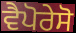
ਵੈਪੋਰੇਸੋ